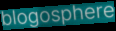
blogosphere